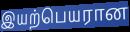
இயற்பெயரான